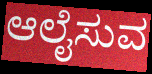
ಆಲೈಸುವ